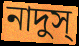
নাদুস্